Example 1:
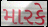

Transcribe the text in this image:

મારકે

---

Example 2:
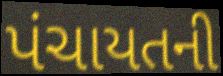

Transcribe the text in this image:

પંચાયતની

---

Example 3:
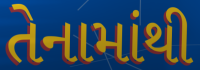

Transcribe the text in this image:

તેનામાંથી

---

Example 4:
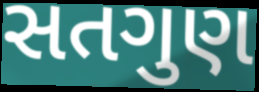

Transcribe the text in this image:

સતગુણ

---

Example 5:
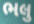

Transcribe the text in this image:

ભલુ